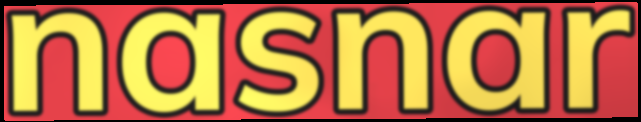
nasnar